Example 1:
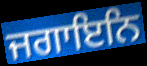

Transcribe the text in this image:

ਜਗਾਇਨਿ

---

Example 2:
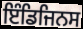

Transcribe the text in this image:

ਇੰਡਿਜਿਨਸ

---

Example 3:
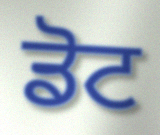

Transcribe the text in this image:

ਡੋਟ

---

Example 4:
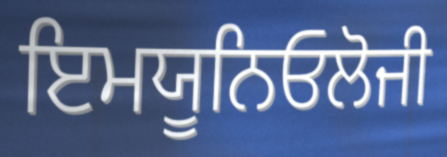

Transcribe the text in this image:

ਇਮਯੂਨਿਓਲੋਜੀ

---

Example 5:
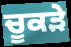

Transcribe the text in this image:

ਚੂਕੜੇ